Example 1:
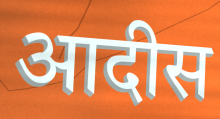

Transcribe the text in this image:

आदीस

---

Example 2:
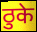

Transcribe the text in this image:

ठुके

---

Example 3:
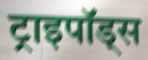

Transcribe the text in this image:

ट्राइपॉड्स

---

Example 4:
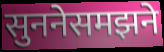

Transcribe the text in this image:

सुननेसमझने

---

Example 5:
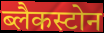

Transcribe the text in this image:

ब्लैकस्टोन